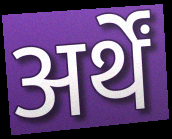
अर्थें